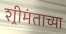
श्रीमंताच्या